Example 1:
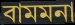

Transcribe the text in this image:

বামমনা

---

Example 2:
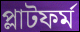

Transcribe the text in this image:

প্লাটফর্ম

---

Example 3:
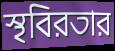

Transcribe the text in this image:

স্থবিরতার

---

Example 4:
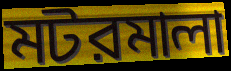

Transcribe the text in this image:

মটরমালা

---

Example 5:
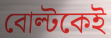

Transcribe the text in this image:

বোল্টকেই